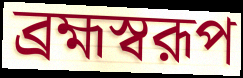
ব্রহ্মস্বরূপ